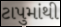
ટાપુમાંથી